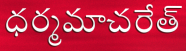
ధర్మమాచరేత్